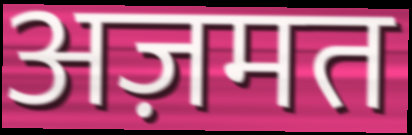
अज़मत